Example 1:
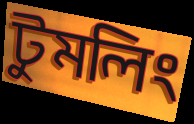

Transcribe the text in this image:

টুমলিং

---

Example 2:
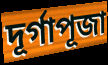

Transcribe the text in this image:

দূর্গাপূজা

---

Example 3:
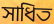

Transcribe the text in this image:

সাধিত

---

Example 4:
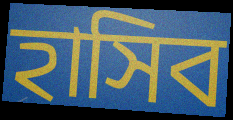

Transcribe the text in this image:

হাসিব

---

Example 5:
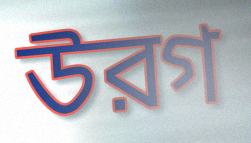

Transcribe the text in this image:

উরগ